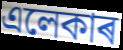
এলেকাৰ